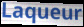
Laqueur